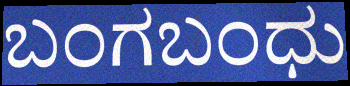
ಬಂಗಬಂಧು